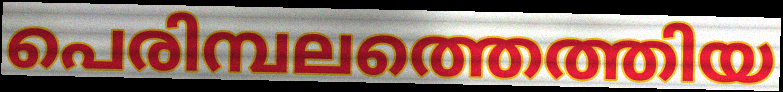
പെരിമ്പലത്തെത്തിയ